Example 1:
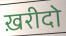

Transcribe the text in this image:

ख़रीदो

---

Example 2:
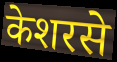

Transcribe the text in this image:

केशरसे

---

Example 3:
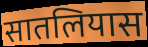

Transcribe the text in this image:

सातलियास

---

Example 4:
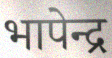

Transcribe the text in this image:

भापेन्द्र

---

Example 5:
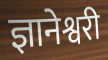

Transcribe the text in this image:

ज्ञानेश्वरी